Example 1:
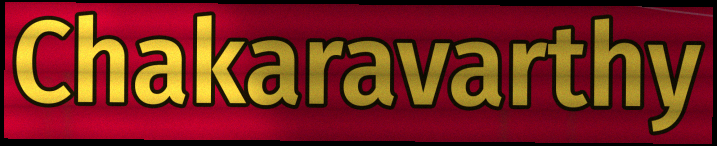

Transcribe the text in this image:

Chakaravarthy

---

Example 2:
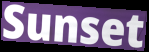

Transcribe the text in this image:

Sunset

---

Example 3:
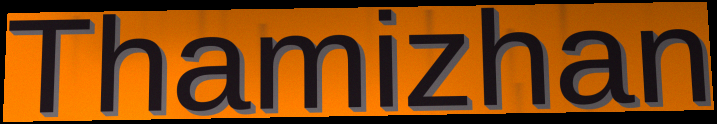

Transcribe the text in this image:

Thamizhan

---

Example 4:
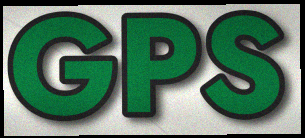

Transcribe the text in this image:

GPS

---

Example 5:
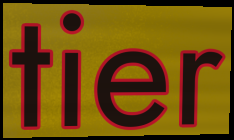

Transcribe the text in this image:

tier